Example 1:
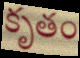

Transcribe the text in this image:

కృతం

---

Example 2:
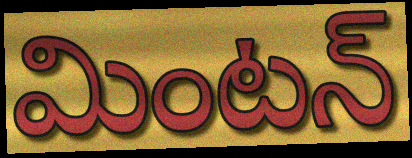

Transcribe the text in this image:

మింటన్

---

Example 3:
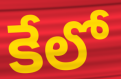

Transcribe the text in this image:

కేలో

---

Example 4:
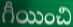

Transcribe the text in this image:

గీయించి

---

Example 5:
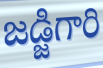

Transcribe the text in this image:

జడ్జిగారి